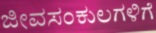
ಜೀವಸಂಕುಲಗಳಿಗೆ